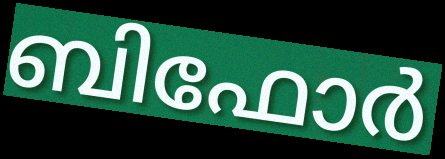
ബിഫോർ